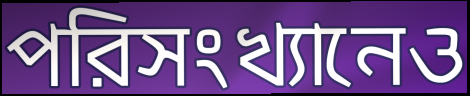
পরিসংখ্যানেও